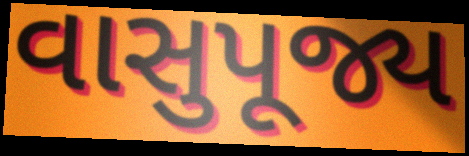
વાસુપૂજ્ય